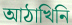
আঠাখিনি